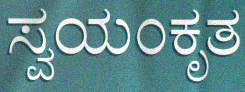
ಸ್ವಯಂಕೃತ